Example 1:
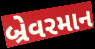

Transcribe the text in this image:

બ્રેવરમાન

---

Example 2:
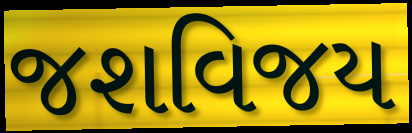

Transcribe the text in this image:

જશવિજય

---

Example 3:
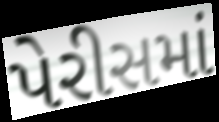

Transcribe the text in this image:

પેરીસમાં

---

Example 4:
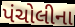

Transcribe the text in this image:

પંચોલીના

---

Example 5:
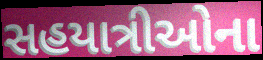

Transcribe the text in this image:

સહયાત્રીઓના